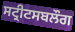
ਸਟ੍ਰੀਟਸਬਲੌਗ